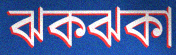
ঝকঝকা